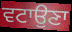
ਵਟਾਉਣਾ